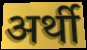
अर्थी